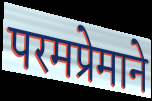
परमप्रेमाने